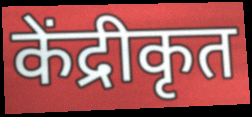
केंद्रीकृत